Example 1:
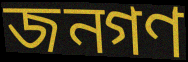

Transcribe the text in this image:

জনগণ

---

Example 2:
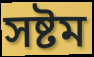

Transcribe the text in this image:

সষ্টম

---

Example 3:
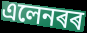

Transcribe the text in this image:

এলেনৰৰ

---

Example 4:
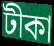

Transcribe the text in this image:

টীকা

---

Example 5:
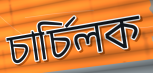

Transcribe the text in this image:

চাৰ্চিলক